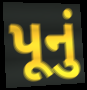
પૂનું